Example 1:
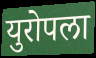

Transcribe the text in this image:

युरोपला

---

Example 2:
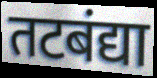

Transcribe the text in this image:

तटबंद्या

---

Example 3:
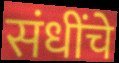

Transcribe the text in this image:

संधींचे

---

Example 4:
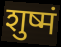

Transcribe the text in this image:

शुष्मं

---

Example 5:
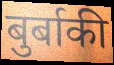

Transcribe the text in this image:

बुर्बाकी